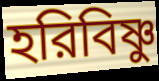
হরিবিষ্ণু